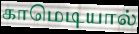
காமெடியால்